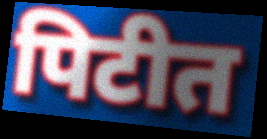
पिटीत